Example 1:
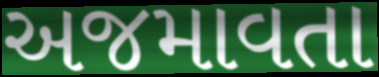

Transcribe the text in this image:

અજમાવતા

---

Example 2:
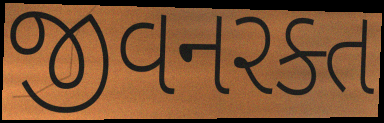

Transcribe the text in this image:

જીવનરક્ત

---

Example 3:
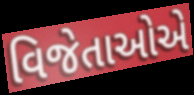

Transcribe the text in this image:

વિજેતાઓએ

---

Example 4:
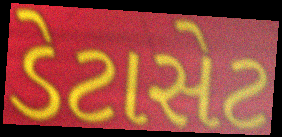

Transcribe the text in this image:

ડેટાસેટ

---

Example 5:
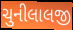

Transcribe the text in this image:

ચુનીલાલજી